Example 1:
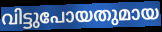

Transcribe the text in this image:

വിട്ടുപോയതുമായ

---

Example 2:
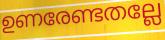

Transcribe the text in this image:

ഉണരേണ്ടതല്ലേ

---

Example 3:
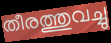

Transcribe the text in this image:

തീരത്തുവച്ചു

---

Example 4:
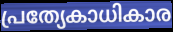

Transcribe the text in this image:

പ്രത്യേകാധികാര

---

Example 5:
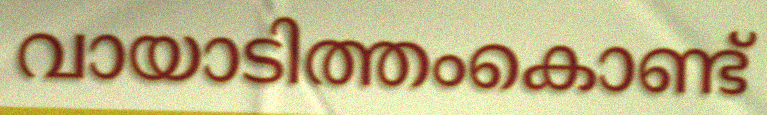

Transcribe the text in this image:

വായാടിത്തംകൊണ്ട്